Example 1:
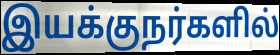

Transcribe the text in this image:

இயக்குநர்களில்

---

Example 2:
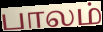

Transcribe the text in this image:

பாலம்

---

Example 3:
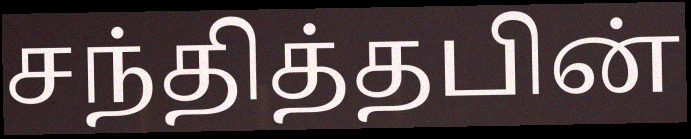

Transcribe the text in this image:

சந்தித்தபின்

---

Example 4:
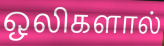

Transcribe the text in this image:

ஒலிகளால்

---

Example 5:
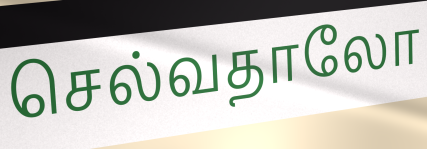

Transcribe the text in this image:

செல்வதாலோ